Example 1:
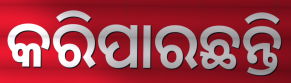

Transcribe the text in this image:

କରିପାରଛନ୍ତି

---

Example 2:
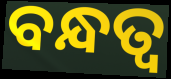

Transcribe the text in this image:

ବନ୍ଧତ୍ୱ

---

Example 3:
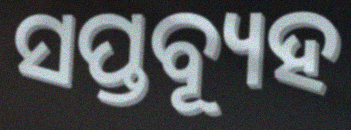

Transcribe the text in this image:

ସପ୍ତବ୍ୟୂହ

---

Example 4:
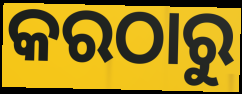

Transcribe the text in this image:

କରଠାରୁ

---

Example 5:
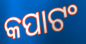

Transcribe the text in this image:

କପାଟଂ